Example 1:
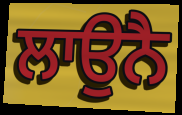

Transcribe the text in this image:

ਲਾਉਨੈ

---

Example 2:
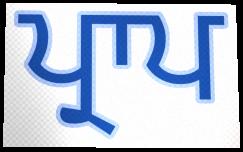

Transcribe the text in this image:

ਪ੍ਰਾਪ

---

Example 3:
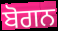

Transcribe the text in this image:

ਬੋਗਨ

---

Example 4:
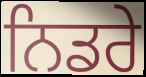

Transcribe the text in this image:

ਨਿਡਰੇ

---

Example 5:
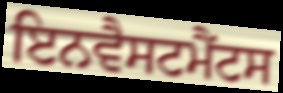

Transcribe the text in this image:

ਇਨਵੈਸਟਮੈਂਟਸ